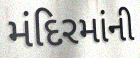
મંદિરમાંની